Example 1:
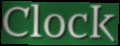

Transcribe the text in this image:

Clock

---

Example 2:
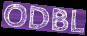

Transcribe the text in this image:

ODBL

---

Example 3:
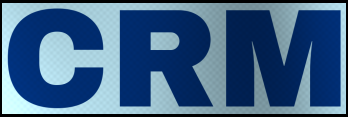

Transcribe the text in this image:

CRM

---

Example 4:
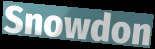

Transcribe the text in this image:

Snowdon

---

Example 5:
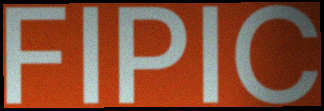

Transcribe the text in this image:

FIPIC